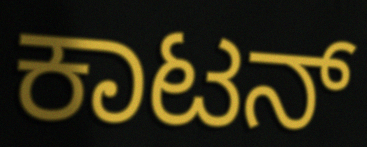
ಕಾಟನ್